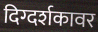
दिग्दर्शकावर